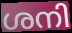
ശനി